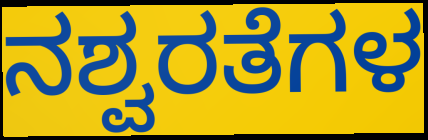
ನಶ್ವರತೆಗಳ